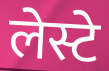
लेस्टे